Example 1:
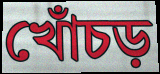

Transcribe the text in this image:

খোঁচড়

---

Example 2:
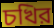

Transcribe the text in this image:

চখির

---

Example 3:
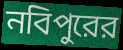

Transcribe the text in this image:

নবিপুরের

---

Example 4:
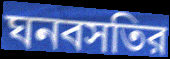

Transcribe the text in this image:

ঘনবসতির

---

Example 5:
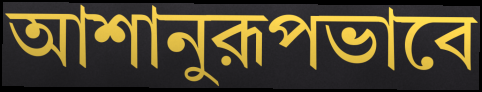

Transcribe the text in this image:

আশানুরূপভাবে